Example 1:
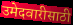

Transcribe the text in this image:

उमेदवारीसाठी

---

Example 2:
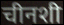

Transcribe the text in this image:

चीनशी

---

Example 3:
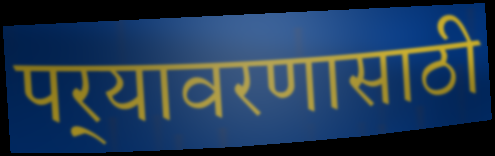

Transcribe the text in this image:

पर्यावरणासाठी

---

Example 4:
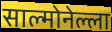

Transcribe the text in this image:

साल्मोनेल्ला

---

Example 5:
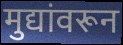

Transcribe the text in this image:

मुद्यांवरून